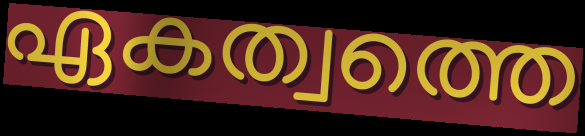
ഏകത്വത്തെ